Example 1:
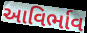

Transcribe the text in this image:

આવિર્ભાવ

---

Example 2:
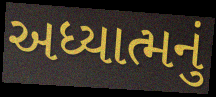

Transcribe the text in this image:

અધ્યાત્મનું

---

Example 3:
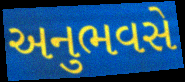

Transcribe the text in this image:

અનુભવસે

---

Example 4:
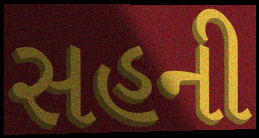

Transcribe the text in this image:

સહની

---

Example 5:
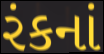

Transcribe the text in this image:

રંકનાં